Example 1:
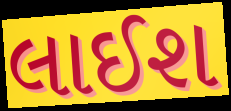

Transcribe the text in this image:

લાઈશ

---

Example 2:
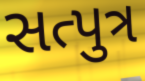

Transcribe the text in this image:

સત્પુત્ર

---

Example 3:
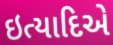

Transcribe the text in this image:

ઇત્યાદિએ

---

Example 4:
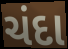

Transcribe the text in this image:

ચંદા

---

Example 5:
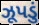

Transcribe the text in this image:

ઝૂપડું